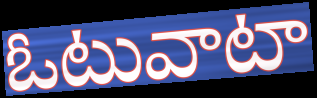
ఓటువాటా